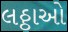
લઠ્ઠાઓ